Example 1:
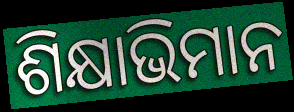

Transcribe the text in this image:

ଶିକ୍ଷାଭିମାନ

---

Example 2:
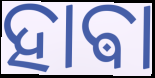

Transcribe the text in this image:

ହାଵା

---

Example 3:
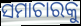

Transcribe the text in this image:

ସମାଚାରକୁ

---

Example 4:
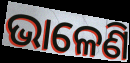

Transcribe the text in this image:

ଭାଳେଣି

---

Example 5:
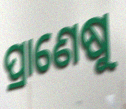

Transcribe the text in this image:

ପ୍ରାଣେଷୁ